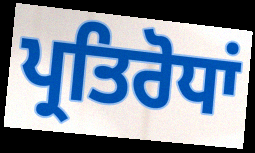
ਪ੍ਰਤਿਰੋਧਾਂ